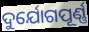
ଦୁର୍ଯୋଗପୂର୍ଣ୍ଣ